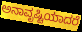
ಅನಾವೃಷ್ಟಿಯಾದರೆ